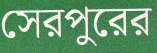
সেরপুরের